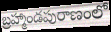
బ్రహ్మాండపురాణంలో